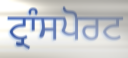
ਟ੍ਰਾੰਸਪੋਰਟ